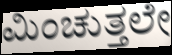
ಮಿಂಚುತ್ತಲೇ